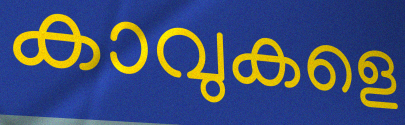
കാവുകളെ